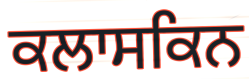
ਕਲਾਸਕਿਨ